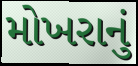
મોખરાનું